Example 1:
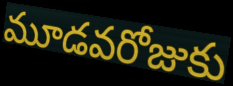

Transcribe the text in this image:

మూడవరోజుకు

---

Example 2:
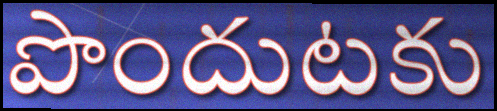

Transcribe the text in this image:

పొందుటకు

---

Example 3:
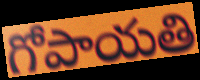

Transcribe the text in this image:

గోపాయతి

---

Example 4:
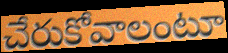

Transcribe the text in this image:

చేరుకోవాలంటూ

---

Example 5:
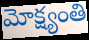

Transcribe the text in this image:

మోక్ష్యంతి